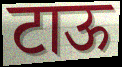
टाऊ